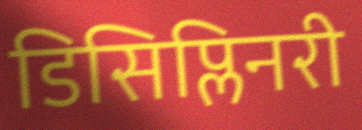
डिसिप्लिनरी